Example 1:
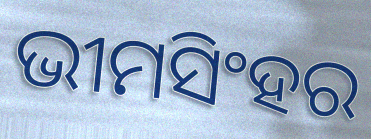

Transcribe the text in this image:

ଭୀମସିଂହର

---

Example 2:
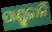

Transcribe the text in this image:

ପାଣ୍ଡ୍ରୁଜାନି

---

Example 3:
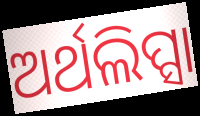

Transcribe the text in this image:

ଅର୍ଥଲିପ୍ସା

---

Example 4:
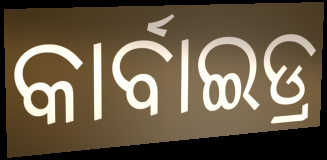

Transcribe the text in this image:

କାର୍ବାଇଡ୍ର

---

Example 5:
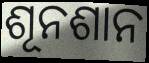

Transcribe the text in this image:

ଶୂନଶାନ